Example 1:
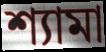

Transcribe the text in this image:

শ্যামা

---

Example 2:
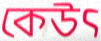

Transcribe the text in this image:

কেউৎ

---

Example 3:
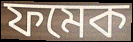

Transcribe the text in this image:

ফমেক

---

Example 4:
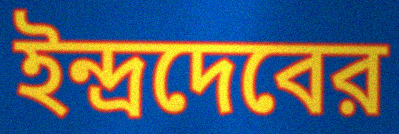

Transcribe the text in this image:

ইন্দ্রদেবের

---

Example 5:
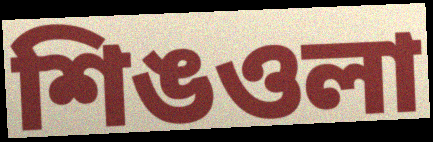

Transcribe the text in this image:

শিঙওলা